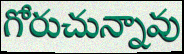
గోరుచున్నావు